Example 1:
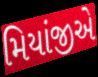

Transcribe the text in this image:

મિયાંજીએ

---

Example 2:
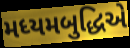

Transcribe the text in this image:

મધ્યમબુદ્ધિએ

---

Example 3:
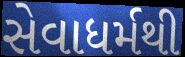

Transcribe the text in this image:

સેવાધર્મથી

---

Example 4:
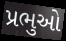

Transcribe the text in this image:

પ્રભુઓ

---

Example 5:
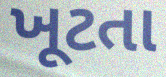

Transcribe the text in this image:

ખૂટતા